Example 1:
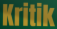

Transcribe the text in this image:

Kritik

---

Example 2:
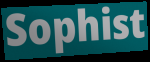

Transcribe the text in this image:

Sophist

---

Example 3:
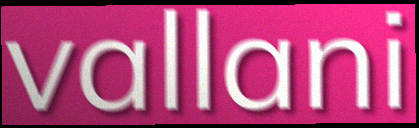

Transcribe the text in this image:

vallani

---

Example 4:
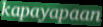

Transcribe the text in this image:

kapayapaan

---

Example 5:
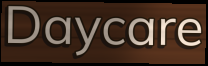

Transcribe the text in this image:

Daycare